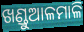
ଖଣ୍ଡୁଆଳମାଳି